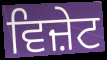
ਵਿਜ਼ੇਟ